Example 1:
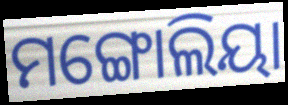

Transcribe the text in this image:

ମଙ୍ଗୋଲିୟା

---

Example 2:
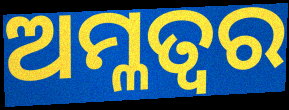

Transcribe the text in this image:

ଅମ୍ଳତ୍ଵର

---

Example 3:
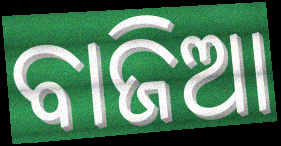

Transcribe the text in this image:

ବାଜିଆ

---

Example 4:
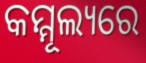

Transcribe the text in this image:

କମ୍ମୂଲ୍ୟରେ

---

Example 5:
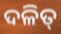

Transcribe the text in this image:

ଦଳିତ୍